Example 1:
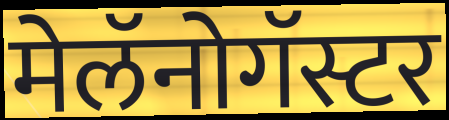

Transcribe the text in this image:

मेलॅनोगॅस्टर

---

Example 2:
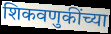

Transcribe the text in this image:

शिकवणुकींच्या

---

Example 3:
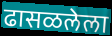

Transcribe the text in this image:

ढासळलेला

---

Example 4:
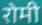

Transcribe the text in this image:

रोमी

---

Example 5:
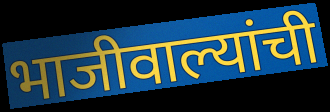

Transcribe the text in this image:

भाजीवाल्यांची